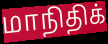
மாநிதிக்